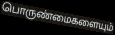
பொருண்மைகளையும்